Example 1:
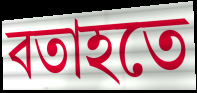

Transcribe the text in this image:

বতাহতে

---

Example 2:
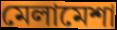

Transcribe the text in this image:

মেলামেশা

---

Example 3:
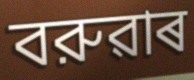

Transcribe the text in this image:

বৰুৱাৰ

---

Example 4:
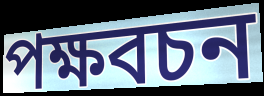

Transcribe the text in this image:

পক্ষবচন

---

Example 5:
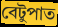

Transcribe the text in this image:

বেটুপাত